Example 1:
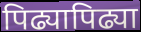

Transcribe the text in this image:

पिढ्यापिढ्या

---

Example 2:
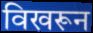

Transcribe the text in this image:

विखरून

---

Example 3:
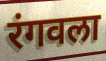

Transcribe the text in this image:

रंगवला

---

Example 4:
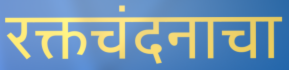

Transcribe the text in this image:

रक्तचंदनाचा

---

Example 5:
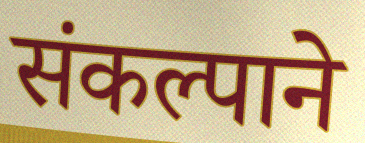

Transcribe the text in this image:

संकल्पाने